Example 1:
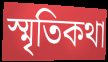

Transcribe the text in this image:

স্মৃতিকথা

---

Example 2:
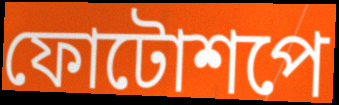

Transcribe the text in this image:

ফোটোশপে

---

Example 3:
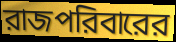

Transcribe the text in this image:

রাজপরিবারের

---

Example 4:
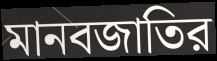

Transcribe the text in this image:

মানবজাতির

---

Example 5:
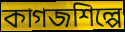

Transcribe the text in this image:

কাগজশিল্পে